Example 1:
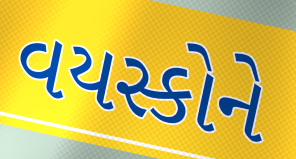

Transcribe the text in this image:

વયસ્કોને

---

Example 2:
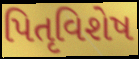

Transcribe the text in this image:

પિતૃવિશેષ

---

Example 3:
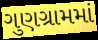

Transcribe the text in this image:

ગુણગ્રામમાં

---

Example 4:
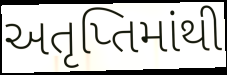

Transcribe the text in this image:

અતૃપ્તિમાંથી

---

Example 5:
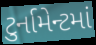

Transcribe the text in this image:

ટુર્નામેન્ટમાં